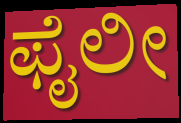
ಫೈಲೀ